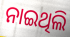
ନାଇଥିଲି